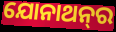
ଯୋନାଥନ୍‍ର